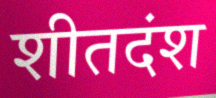
शीतदंश